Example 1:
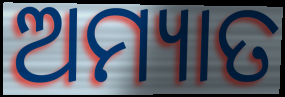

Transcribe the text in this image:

ଅମ୍ୟାତ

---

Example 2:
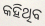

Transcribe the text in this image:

କହିଥିବ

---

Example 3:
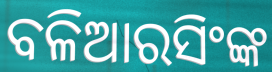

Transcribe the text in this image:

ବଳିଆରସିଂଙ୍କ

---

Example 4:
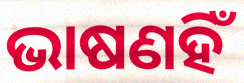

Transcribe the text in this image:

ଭାଷଣହିଁ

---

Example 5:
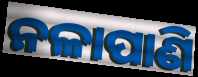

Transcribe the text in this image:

ନଳାପାଣି